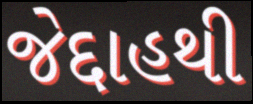
જેદ્દાહથી